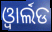
ଓ୍ବାର୍ଲଡ